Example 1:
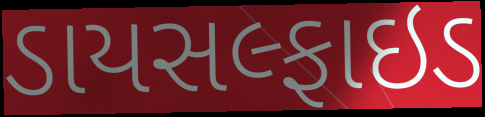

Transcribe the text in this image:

ડાયસલ્ફાઇડ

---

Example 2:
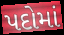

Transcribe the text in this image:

પદોમાં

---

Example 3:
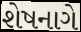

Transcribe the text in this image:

શેષનાગે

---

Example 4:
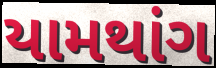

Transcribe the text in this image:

યામથાંગ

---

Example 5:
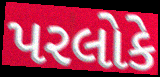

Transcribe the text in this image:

પરલોકે